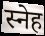
स्नेह